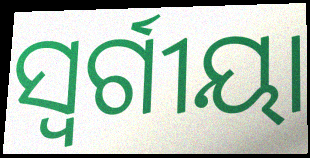
ସ୍ବର୍ଗୀୟା